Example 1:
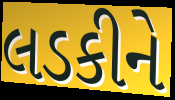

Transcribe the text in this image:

લડકીને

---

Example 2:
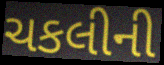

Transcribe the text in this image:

ચકલીની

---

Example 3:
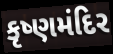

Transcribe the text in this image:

કૃષ્ણમંદિર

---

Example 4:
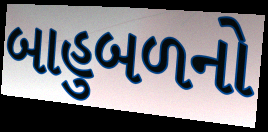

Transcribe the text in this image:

બાહુબળનો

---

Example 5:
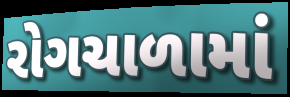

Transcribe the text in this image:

રોગચાળામાં